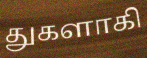
துகளாகி